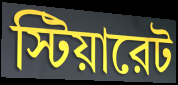
স্টিয়ারেট